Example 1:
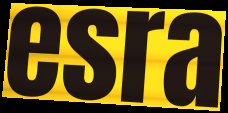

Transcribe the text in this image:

esra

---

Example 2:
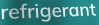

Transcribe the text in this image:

refrigerant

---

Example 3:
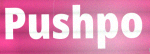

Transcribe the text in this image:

Pushpo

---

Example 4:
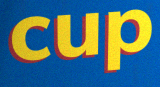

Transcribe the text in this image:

cup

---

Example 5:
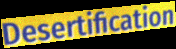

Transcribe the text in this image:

Desertification